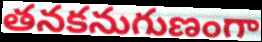
తనకనుగుణంగా